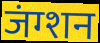
जंग्शन